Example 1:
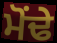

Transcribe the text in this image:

ਮੋਂਢੇ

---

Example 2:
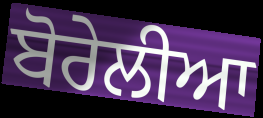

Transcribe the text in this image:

ਬੋਰੇਲੀਆ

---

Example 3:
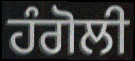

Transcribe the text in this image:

ਹੰਗੋਲੀ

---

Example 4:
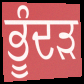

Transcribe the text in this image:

ਭੂੰਦੜ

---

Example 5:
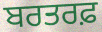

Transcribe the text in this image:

ਬਰਤਰਫ਼